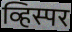
व्हिस्पर